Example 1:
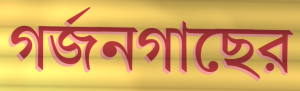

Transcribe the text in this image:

গর্জনগাছের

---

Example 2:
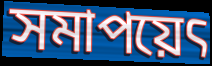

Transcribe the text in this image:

সমাপয়েৎ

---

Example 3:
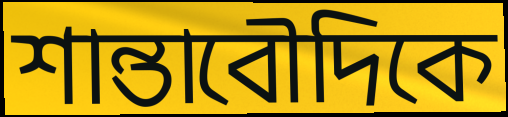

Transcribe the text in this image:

শান্তাবৌদিকে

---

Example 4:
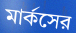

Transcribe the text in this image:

মার্কসের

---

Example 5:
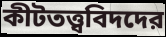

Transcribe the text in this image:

কীটতত্ত্ববিদদের